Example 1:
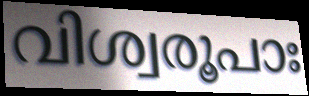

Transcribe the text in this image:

വിശ്വരൂപാഃ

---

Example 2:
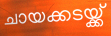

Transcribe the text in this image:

ചായക്കടയ്ക്ക്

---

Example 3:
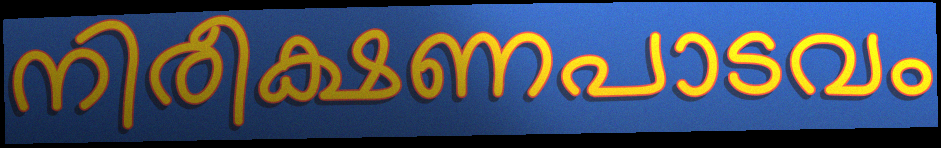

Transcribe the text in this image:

നിരീക്ഷണപാടവം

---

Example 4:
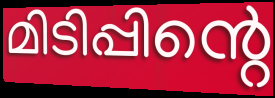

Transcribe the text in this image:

മിടിപ്പിന്റെ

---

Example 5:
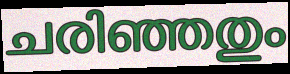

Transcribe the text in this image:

ചരിഞ്ഞതും